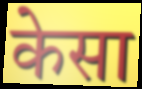
केसा